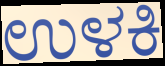
ಉಳಕಿ